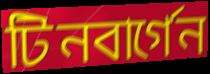
টিনবার্গেন